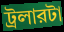
ট্রলারটা